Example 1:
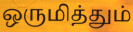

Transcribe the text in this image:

ஒருமித்தும்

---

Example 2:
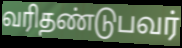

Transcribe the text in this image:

வரிதண்டுபவர்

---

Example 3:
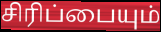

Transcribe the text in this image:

சிரிப்பையும்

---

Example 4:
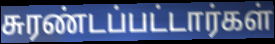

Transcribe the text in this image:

சுரண்டப்பட்டார்கள்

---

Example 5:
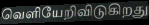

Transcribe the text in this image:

வெளியேறிவிடுகிறது